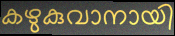
കഴുകുവാനായി